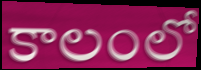
కాలంలో